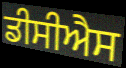
ਡੀਸੀਐਸ